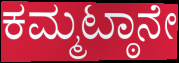
ಕಮ್ಮಟ್ಠಾನೇ